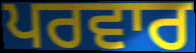
ਪਰਵਾਰ